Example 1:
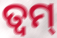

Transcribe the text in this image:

ତ୍ୱମ୍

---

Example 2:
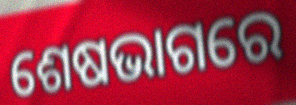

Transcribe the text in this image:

ଶେଷଭାଗରେ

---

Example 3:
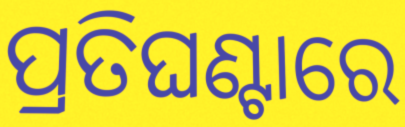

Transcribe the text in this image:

ପ୍ରତିଘଣ୍ଟାରେ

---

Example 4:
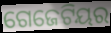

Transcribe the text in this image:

ଗେଜେଟିୟର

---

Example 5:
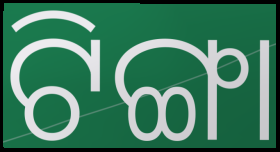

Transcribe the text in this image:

ଟିଙ୍ଗା